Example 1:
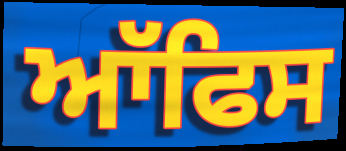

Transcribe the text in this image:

ਆੱਫਿਸ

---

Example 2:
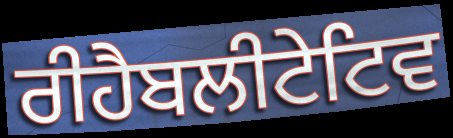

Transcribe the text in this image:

ਰੀਹੈਬਲੀਟੇਟਿਵ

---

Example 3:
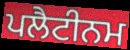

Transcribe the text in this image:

ਪਲੈਟੀਨਮ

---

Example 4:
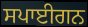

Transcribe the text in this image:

ਸਪਾਈਗਨ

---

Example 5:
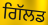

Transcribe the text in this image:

ਗਿੱਲਡ